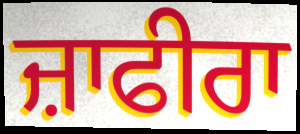
ਜ਼ਾਫੀਰਾ